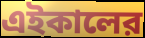
এইকালের